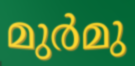
മുർമു